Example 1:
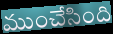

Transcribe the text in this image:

ముంచేసింది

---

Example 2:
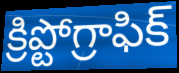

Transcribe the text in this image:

క్రిప్టోగ్రాఫిక్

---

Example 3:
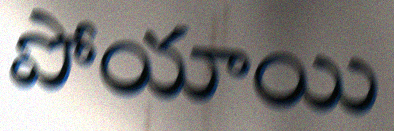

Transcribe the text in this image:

పోయాయి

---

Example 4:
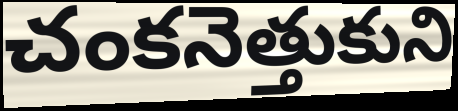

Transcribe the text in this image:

చంకనెత్తుకుని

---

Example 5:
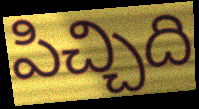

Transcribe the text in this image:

పిచ్చిది